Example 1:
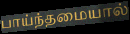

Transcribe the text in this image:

பாய்ந்தமையால்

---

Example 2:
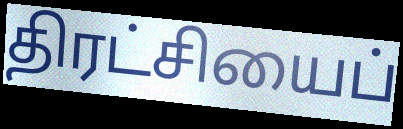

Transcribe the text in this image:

திரட்சியைப்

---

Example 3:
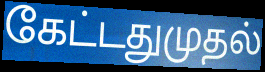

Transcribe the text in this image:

கேட்டதுமுதல்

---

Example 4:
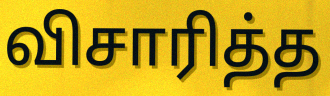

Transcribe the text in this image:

விசாரித்த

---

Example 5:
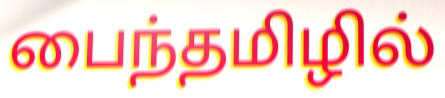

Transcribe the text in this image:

பைந்தமிழில்